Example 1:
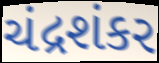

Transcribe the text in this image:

ચંદ્રશંકર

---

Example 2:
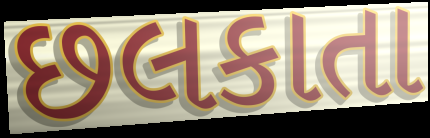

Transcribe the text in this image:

છલકાતા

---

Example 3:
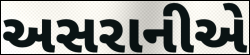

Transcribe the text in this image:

અસરાનીએ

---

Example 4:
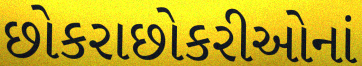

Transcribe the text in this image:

છોકરાછોકરીઓનાં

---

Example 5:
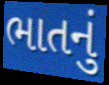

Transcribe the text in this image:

ભાતનું